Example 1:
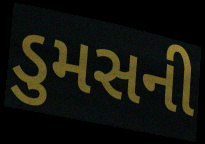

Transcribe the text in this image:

ડુમસની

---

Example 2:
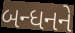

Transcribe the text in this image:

બન્ધનને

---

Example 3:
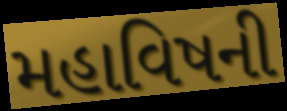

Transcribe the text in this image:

મહાવિષની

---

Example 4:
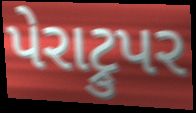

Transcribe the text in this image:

પેરાટ્રુપર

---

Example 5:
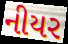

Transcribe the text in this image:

નીયર